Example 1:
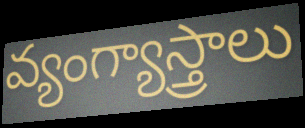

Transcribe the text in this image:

వ్యంగ్యాస్త్రాలు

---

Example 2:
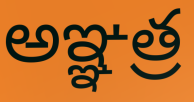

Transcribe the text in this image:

అఞ్ఞత్ర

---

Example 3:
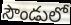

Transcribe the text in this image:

సౌండులో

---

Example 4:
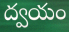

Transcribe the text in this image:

ద్వయం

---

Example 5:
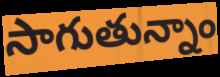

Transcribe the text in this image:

సాగుతున్నాం